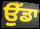
ਉੱਡਾ